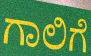
ಗಾಲಿಗೆ